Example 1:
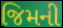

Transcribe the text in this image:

જિમની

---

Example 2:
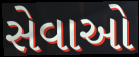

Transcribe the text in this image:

સેવાઓ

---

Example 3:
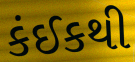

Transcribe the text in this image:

કંઈકથી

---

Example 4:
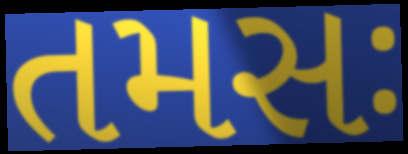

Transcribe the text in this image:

તમસઃ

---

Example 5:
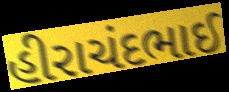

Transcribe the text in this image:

હીરાચંદભાઈ